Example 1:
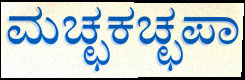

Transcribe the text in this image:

ಮಚ್ಛಕಚ್ಛಪಾ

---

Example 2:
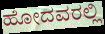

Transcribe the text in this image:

ಹೋದವರಲ್ಲಿ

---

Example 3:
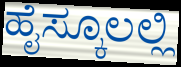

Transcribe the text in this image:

ಹೈಸ್ಕೂಲಲ್ಲಿ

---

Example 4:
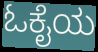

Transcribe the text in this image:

ಓಕೈಯ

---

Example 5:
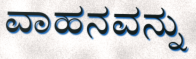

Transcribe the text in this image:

ವಾಹನವನ್ನು